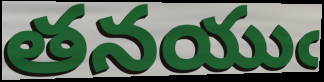
తనయుఁ